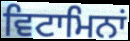
ਵਿਟਾਮਿਨਾਂ